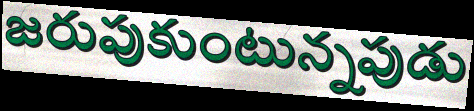
జరుపుకుంటున్నపుడు